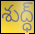
శుద్ధ్